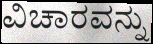
ವಿಚಾರವನ್ನು